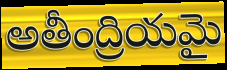
అతీంద్రియమై